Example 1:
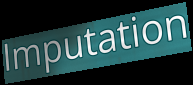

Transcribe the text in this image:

Imputation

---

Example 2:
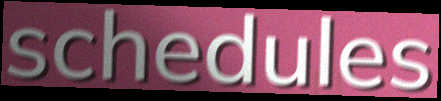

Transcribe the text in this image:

schedules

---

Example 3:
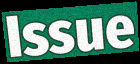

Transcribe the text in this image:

Issue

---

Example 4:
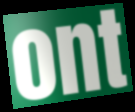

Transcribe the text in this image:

ont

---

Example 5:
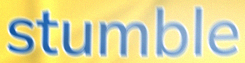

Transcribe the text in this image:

stumble